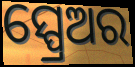
ସ୍ପ୍ରେଅର